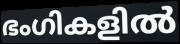
ഭംഗികളിൽ